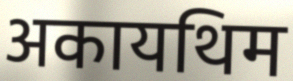
अकायथिम